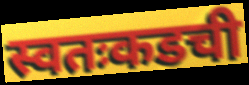
स्वतःकडची